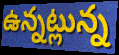
ఉన్నట్లున్న